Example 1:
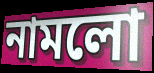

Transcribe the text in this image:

নামলো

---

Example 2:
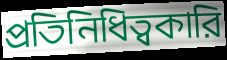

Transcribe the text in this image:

প্রতিনিধিত্বকারি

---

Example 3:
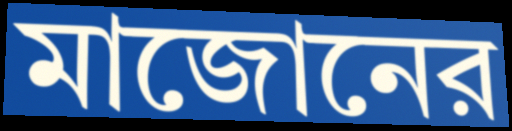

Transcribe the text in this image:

মাজোনের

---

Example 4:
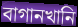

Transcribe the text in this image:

বাগানখানি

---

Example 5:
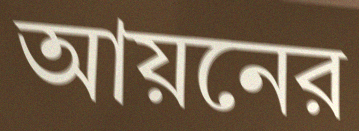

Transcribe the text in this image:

আয়নের